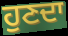
ਹੁਣਦਾ